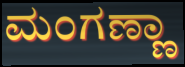
ಮಂಗಣ್ಣಾ